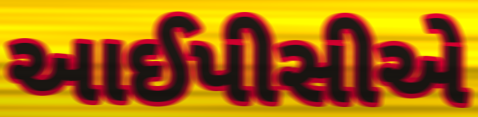
આઈપીસીએ